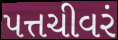
પત્તચીવરં